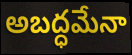
అబద్ధమేనా